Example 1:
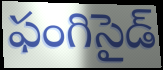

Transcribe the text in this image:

ఫంగిసైడ్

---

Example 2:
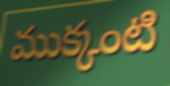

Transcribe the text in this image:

ముక్కంటి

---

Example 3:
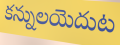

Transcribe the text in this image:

కన్నులయెదుట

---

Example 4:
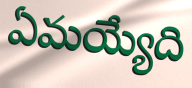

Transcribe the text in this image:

ఏమయ్యేది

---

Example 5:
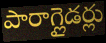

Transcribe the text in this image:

పారాగ్లైడర్లు